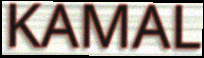
KAMAL